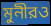
মুনীরও